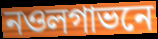
নওলগাভনে